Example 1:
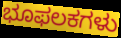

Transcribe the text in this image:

ಭೂಫಲಕಗಳು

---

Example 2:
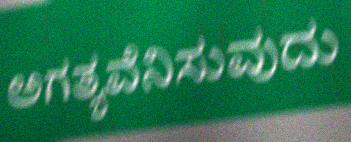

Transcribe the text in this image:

ಅಗತ್ಯವೆನಿಸುವುದು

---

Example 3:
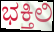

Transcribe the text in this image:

ಭಕ್ತಿಲಿ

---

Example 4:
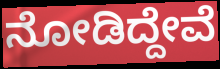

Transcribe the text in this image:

ನೋಡಿದ್ದೇವೆ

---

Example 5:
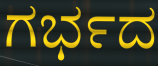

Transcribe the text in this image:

ಗರ್ಭದ